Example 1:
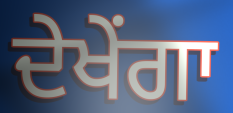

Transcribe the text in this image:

ਦੇਖੇਂਗਾ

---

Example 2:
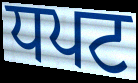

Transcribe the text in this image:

ਧਪਟ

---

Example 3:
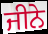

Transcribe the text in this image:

ਜੀਨੇ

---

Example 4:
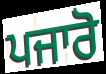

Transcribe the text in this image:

ਪਜਾਰੋ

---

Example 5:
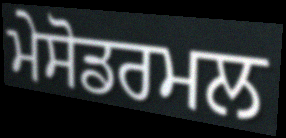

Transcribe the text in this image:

ਮੇਸੋਡਰਮਲ